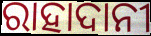
ରାହାଦାନୀ